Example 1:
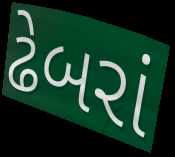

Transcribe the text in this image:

ઢેબરાં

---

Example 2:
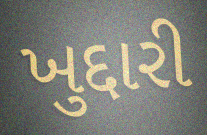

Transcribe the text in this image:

ખુદ્દારી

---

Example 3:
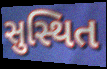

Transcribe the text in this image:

સુસ્થિત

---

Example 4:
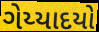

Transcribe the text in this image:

ગેય્યાદયો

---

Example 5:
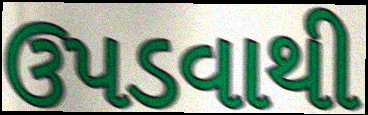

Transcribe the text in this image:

ઉપડવાથી